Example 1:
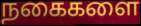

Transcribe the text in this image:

நகைகளை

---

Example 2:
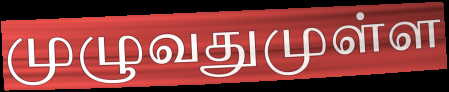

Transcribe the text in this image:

முழுவதுமுள்ள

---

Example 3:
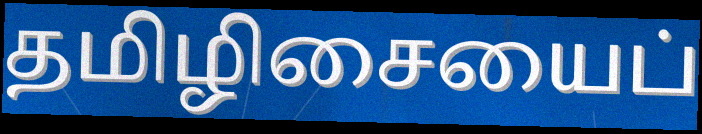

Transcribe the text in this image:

தமிழிசையைப்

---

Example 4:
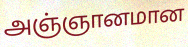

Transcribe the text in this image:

அஞ்ஞானமான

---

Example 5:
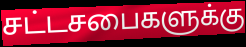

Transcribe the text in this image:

சட்டசபைகளுக்கு